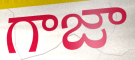
గాజా